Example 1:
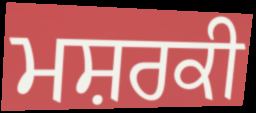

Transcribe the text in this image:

ਮਸ਼ਰਕੀ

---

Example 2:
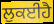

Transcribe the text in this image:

ਲੁਕਈਹੈ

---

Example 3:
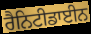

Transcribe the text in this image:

ਰੈਨਿਟੀਡਾਈਨ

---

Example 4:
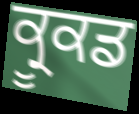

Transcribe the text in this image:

ਕ੍ਰੂਕਡ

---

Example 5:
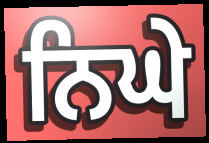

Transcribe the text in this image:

ਨਿਘੇ